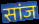
सांज